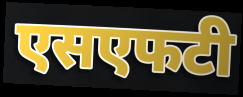
एसएफटी